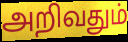
அறிவதும்